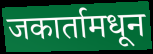
जकार्तामधून